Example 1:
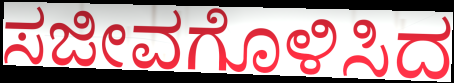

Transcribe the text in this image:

ಸಜೀವಗೊಳಿಸಿದ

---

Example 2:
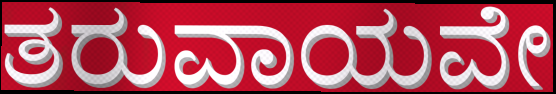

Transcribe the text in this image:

ತರುವಾಯವೇ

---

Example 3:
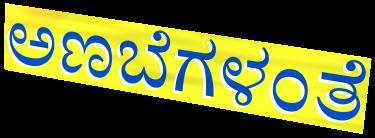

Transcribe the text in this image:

ಅಣಬೆಗಳಂತೆ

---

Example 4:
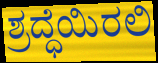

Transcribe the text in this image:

ಶ್ರದ್ಧೆಯಿರಲಿ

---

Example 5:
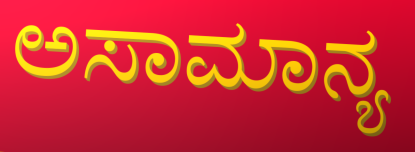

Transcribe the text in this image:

ಅಸಾಮಾನ್ಯ